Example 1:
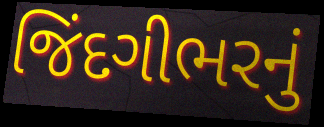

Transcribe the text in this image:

જિંદગીભરનું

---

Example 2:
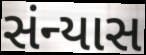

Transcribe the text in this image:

સંન્યાસ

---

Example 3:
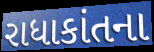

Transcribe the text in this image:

રાધાકાંતના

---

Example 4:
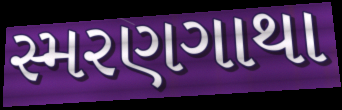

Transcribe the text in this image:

સ્મરણગાથા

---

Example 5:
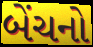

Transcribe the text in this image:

બેંચનો